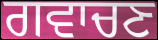
ਗਵਾਚਣ